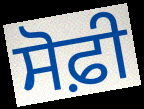
ਸੋਫ਼ੀ